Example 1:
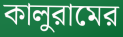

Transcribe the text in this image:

কালুরামের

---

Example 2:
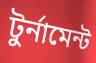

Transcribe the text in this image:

টুর্নামেন্ট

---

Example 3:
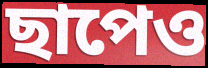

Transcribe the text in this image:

ছাপেও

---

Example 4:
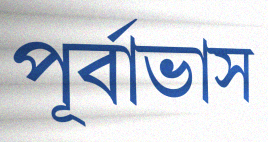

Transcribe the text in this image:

পূর্বাভাস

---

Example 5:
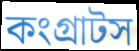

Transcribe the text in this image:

কংগ্রাটস